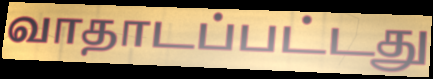
வாதாடப்பட்டது